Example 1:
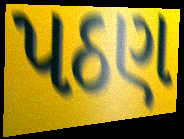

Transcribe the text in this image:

પઠણ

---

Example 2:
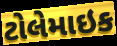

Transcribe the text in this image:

ટોલેમાઇક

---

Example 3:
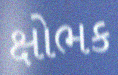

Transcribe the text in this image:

ક્ષોભક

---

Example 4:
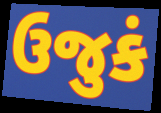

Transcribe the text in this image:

ઉજુકં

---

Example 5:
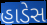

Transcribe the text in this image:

હાડેસ